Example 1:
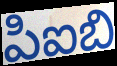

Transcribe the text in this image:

పిఐబి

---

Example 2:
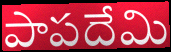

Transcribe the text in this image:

పాపదేమి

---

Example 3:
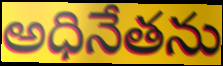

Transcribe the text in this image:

అధినేతను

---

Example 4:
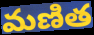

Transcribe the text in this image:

మణిత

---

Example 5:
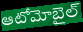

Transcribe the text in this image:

ఆటోమోబైల్